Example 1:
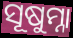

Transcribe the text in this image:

ସୂଷୁମ୍ନା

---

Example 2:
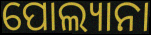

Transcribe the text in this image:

ପୋଲ୍ୟାନା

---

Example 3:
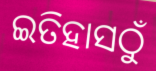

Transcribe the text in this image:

ଇତିହାସଠୁଁ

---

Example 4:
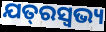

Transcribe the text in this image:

ଯତ୍‌ରସ୍ଵଭ୍ୟ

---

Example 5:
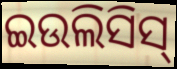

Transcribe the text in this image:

ଇଉଲିସିସ୍